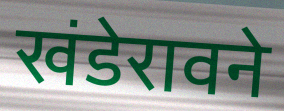
खंडेरावने